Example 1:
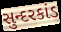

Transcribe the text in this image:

સુન્દરકાંડ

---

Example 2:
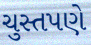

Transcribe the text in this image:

ચુસ્તપણે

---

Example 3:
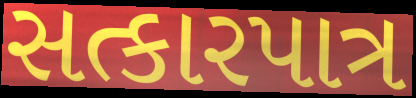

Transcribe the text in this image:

સત્કારપાત્ર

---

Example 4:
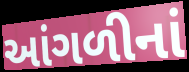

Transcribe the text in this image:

આંગળીનાં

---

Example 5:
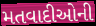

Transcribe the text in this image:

મતવાદીઓની